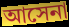
আসেনা